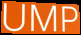
UMP